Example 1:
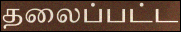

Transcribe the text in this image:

தலைப்பட்ட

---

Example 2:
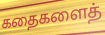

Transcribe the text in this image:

கதைகளைத்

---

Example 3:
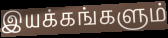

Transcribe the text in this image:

இயக்கங்களும்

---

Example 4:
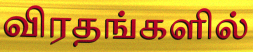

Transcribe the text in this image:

விரதங்களில்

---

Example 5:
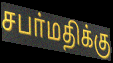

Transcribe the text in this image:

சபர்மதிக்கு